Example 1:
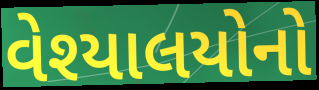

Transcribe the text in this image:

વેશ્યાલયોનો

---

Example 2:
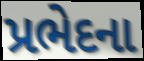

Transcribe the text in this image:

પ્રભેદના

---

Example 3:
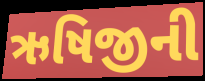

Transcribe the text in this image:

ઋષિજીની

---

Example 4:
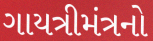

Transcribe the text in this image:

ગાયત્રીમંત્રનો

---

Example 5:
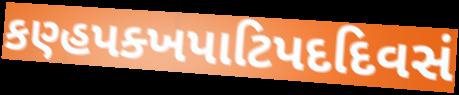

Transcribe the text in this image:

કણ્હપક્ખપાટિપદદિવસં